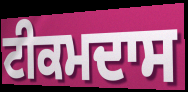
ਟੀਕਮਦਾਸ